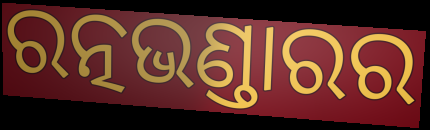
ରତ୍ନଭଣ୍ଡାରର